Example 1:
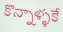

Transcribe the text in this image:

కొన్నాళ్ళకే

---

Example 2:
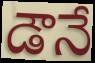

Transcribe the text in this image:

డౌనే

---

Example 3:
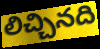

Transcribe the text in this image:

లిచ్చినది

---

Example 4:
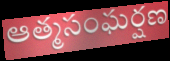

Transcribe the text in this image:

ఆత్మసంఘర్షణ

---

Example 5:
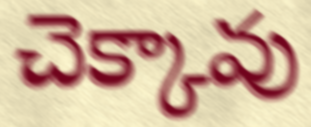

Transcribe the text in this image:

చెక్కావు